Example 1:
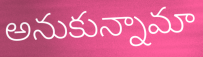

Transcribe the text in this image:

అనుకున్నామా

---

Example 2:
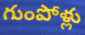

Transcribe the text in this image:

గుంపోళ్లు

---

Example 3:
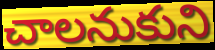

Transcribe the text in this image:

చాలనుకుని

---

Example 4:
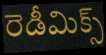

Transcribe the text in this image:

రెడీమిక్స్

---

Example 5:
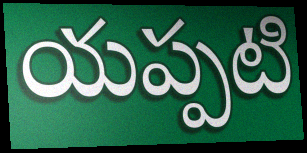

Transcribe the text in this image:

యప్పటి